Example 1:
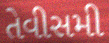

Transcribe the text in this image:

તેવીસમી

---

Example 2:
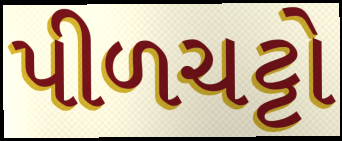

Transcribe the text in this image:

પીળચટ્ટો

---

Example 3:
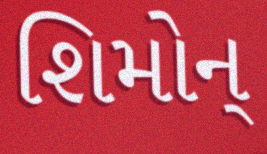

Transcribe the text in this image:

શિમોન્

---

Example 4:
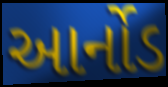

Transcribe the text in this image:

આર્નોડ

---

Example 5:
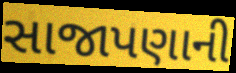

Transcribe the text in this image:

સાજાપણાની